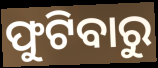
ଫୁଟିବାରୁ